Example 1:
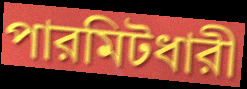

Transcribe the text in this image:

পারমিটধারী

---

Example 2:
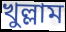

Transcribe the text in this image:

খুল্লাম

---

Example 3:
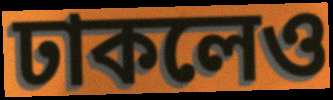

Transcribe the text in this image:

ঢাকলেও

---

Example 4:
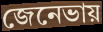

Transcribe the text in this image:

জেনেভায়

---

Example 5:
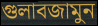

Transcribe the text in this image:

গুলাবজামুন